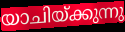
യാചിയ്ക്കുന്നു